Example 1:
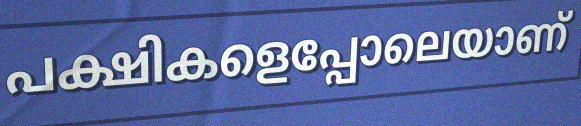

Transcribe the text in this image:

പക്ഷികളെപ്പോലെയാണ്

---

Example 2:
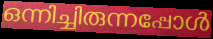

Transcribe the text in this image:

ഒന്നിച്ചിരുന്നപ്പോൾ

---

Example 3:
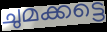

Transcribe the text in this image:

ചുമക്കട്ടെ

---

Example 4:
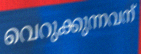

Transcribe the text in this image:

വെറുക്കുന്നവന്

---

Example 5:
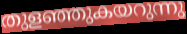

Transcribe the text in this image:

തുളഞ്ഞുകയറുന്നു